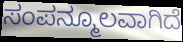
ಸಂಪನ್ಮೂಲವಾಗಿದೆ